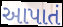
આપાતં